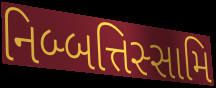
નિબ્બત્તિસ્સામિ